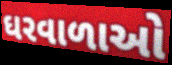
ઘરવાળાઓ